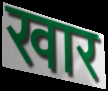
खार